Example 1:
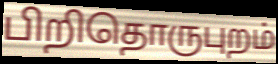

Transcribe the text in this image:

பிறிதொருபுறம்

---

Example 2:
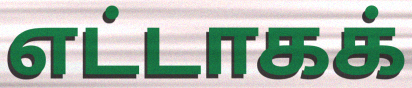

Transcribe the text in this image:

எட்டாகக்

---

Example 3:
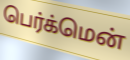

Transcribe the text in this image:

பெர்க்மென்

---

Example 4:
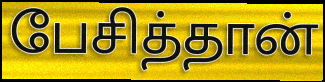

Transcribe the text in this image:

பேசித்தான்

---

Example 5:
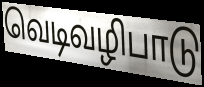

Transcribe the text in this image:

வெடிவழிபாடு